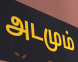
அடமும்